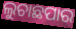
ଲୁଚାଛପାର